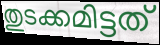
തുടക്കമിട്ടത്